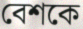
বেশকে